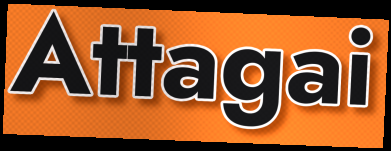
Attagai